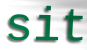
sit